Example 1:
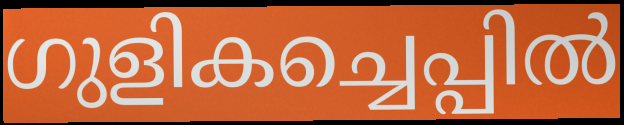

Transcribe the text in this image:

ഗുളികച്ചെപ്പിൽ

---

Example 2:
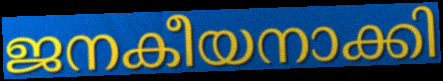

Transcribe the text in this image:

ജനകീയനാക്കി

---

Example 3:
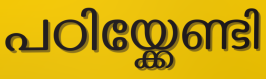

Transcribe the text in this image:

പഠിയ്ക്കേണ്ടി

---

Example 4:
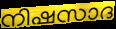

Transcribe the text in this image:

നിഷസാദ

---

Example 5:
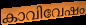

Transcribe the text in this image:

കാവിവേഷം